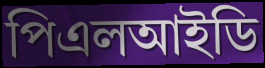
পিএলআইডি